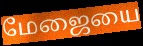
மேஜையை